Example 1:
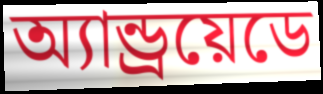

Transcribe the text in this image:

অ্যান্ড্রয়েডে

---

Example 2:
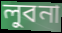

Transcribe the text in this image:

লুবনা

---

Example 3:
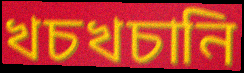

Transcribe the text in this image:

খচখচানি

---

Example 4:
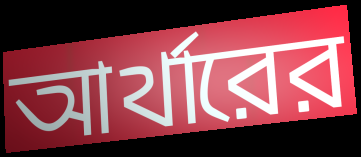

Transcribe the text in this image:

আর্থারের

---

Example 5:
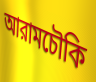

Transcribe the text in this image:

আরামচৌকি